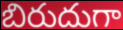
బిరుదుగా